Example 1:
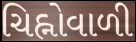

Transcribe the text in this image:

ચિહ્નોવાળી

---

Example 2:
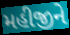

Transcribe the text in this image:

મહીજીને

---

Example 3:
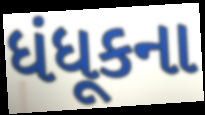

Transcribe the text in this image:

ધંધૂકના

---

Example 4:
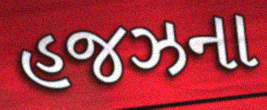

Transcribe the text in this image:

હજઝના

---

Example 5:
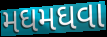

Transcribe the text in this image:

મઘમઘવા